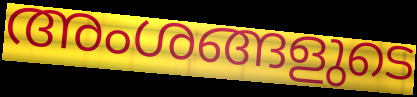
അംശങ്ങളുടെ